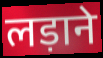
लड़ाने